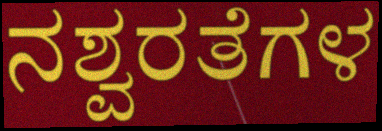
ನಶ್ವರತೆಗಳ